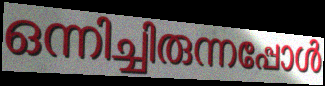
ഒന്നിച്ചിരുന്നപ്പോൾ